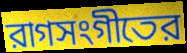
রাগসংগীতের